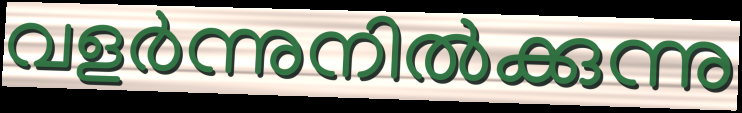
വളർന്നുനിൽക്കുന്നു